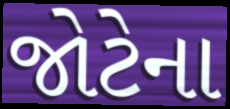
જોટેના